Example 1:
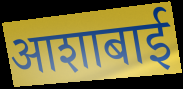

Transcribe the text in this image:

आशाबाई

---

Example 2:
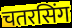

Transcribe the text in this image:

चतरसिंग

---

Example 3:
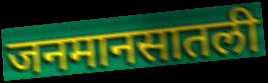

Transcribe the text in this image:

जनमानसातली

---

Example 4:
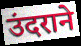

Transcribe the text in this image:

उंदराने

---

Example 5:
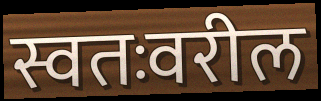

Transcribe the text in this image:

स्वतःवरील